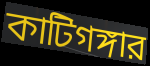
কাটিগঙ্গার